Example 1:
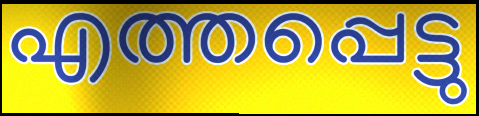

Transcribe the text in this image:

എത്തപ്പെട്ടു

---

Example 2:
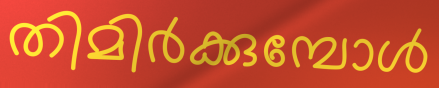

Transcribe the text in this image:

തിമിർക്കുമ്പോൾ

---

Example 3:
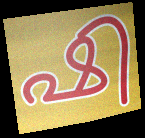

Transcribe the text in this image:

ഷി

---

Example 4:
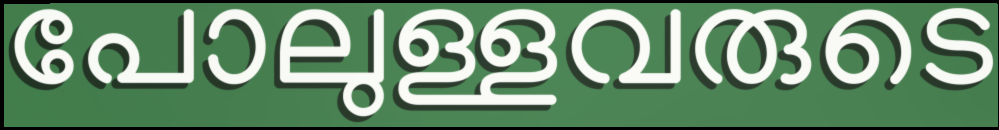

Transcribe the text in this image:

പോലുള്ളവരുടെ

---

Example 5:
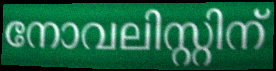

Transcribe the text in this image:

നോവലിസ്റ്റിന്